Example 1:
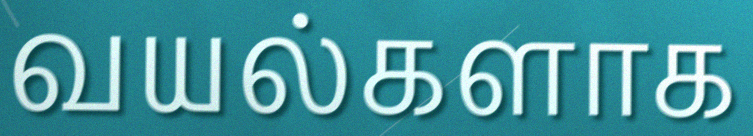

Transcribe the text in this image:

வயல்களாக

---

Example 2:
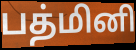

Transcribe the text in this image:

பத்மினி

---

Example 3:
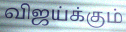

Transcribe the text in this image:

விஜய்க்கும்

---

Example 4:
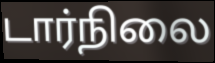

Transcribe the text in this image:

டார்நிலை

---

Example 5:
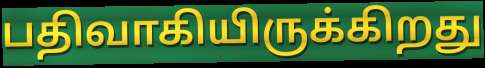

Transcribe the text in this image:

பதிவாகியிருக்கிறது